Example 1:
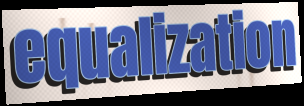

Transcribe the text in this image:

equalization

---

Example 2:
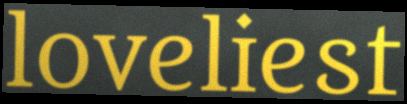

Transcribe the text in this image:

loveliest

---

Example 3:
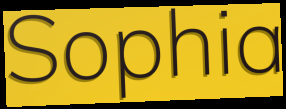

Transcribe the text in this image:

Sophia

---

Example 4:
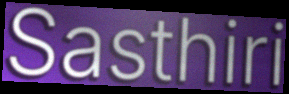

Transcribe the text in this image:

Sasthiri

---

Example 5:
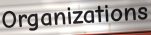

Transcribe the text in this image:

Organizations